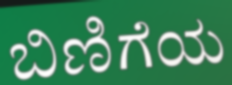
ಬಿಣಿಗೆಯ